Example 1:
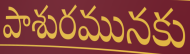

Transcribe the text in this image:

పాశురమునకు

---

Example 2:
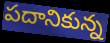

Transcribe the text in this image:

పదానికున్న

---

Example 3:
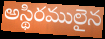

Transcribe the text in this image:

అస్థిరములైన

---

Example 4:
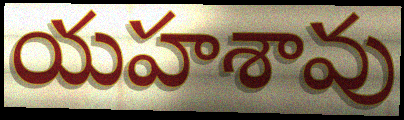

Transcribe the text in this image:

యహశావు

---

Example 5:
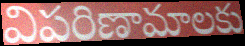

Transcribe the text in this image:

విపరిణామాలకు